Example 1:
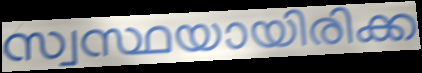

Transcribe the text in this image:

സ്വസ്ഥയായിരിക്ക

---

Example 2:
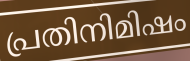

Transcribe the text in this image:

പ്രതിനിമിഷം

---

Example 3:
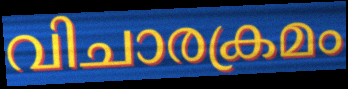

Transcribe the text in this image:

വിചാരക്രമം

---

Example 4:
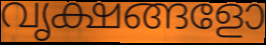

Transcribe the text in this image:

വൃക്ഷങ്ങളോ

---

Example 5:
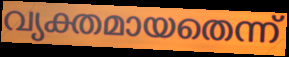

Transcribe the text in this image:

വ്യക്തമായതെന്ന്